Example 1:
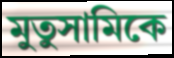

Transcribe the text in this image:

মুতুসামিকে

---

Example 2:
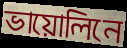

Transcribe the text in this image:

ভায়োলিনে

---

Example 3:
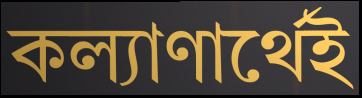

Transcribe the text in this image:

কল্যাণার্থেই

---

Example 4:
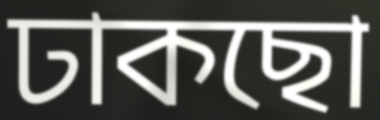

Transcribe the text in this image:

ঢাকছো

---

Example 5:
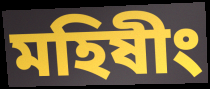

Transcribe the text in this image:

মহিষীং